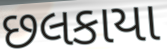
છલકાયા